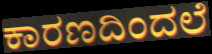
ಕಾರಣದಿಂದಲೆ